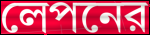
লেপনের